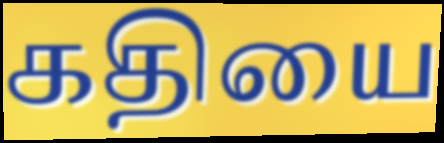
கதியை